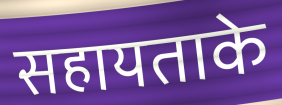
सहायताके